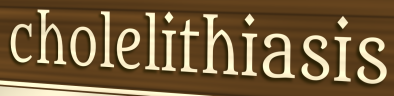
cholelithiasis